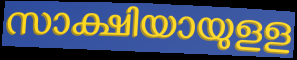
സാക്ഷിയായുളള